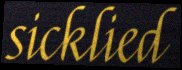
sicklied